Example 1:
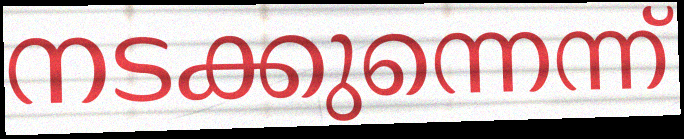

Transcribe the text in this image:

നടക്കുന്നെന്ന്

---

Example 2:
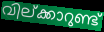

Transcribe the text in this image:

വില്ക്കാറുണ്ട്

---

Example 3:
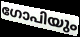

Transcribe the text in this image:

ഗോപിയും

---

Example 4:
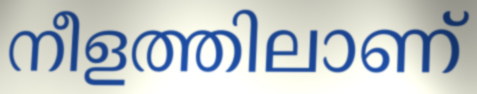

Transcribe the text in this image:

നീളത്തിലാണ്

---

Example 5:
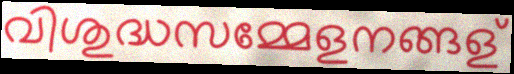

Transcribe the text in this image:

വിശുദ്ധസമ്മേളനങ്ങള്